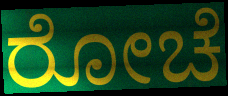
ರೋಚೆ